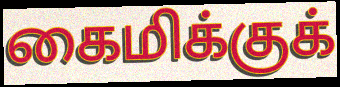
கைமிக்குக்